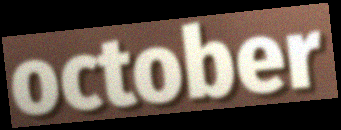
october